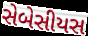
સેબેસીયસ